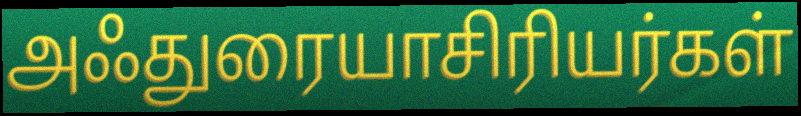
அஃதுரையாசிரியர்கள்